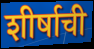
शीर्षाची